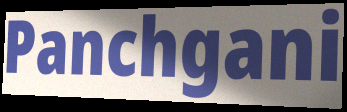
Panchgani